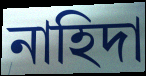
নাহিদা